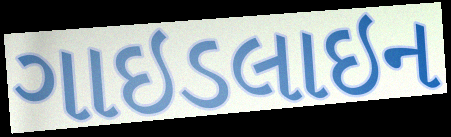
ગાઇડલાઇન